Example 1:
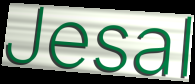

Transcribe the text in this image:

Jesal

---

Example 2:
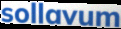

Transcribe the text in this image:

sollavum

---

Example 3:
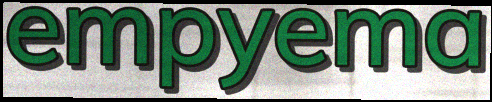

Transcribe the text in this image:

empyema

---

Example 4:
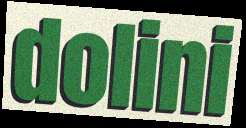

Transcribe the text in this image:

dolini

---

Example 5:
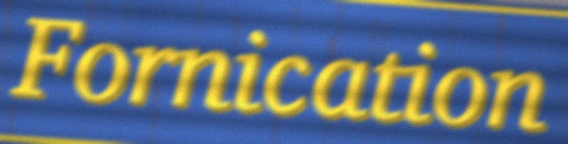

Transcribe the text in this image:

Fornication